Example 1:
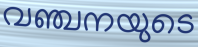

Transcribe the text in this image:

വഞ്ചനയുടെ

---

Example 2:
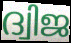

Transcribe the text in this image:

ദ്വിജ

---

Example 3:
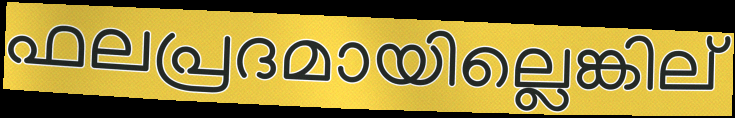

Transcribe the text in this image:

ഫലപ്രദമായില്ലെങ്കില്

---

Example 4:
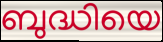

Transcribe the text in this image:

ബുദ്ധിയെ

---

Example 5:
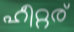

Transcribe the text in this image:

ഹീറ്റര്